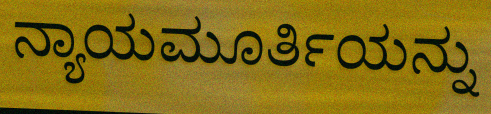
ನ್ಯಾಯಮೂರ್ತಿಯನ್ನು